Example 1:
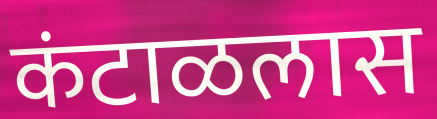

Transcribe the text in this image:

कंटाळलास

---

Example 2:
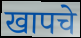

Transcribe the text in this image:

खापचे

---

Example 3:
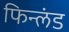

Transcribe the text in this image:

फिन्लंड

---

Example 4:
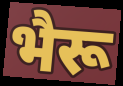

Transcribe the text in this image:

भैरू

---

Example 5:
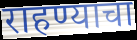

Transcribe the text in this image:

राहण्याचा